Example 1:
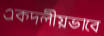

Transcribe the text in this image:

একদলীয়ভাবে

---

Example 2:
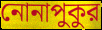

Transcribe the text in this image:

নোনাপুকুর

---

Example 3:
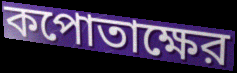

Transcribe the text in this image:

কপোতাক্ষের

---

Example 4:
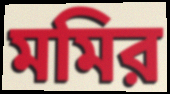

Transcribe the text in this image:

মমির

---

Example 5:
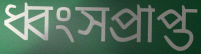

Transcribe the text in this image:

ধ্বংসপ্রাপ্ত